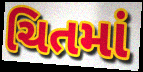
ચિતમાં